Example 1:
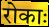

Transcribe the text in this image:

रोकाः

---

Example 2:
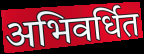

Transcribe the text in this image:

अभिवर्धित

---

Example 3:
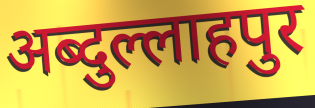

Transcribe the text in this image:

अब्दुल्लाहपुर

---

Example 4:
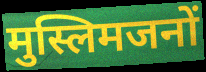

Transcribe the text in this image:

मुस्लिमजनों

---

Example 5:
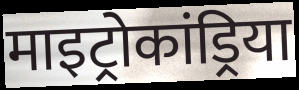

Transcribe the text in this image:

माइट्रोकांड्रिया